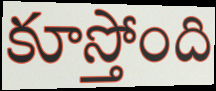
కూస్తోంది